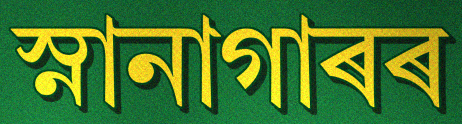
স্নানাগাৰৰ